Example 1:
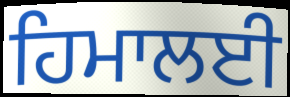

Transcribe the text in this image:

ਹਿਮਾਲਈ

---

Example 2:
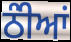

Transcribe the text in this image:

ਠੰੀਆਂ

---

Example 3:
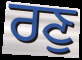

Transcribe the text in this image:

ਰਣੁ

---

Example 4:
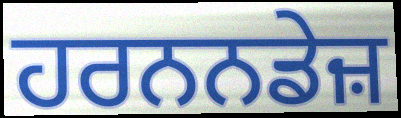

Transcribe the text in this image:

ਹਰਨਨਡੇਜ਼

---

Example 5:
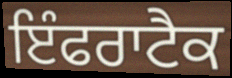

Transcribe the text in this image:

ਇੰਫਰਾਟੈਕ